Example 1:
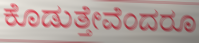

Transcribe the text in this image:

ಕೊಡುತ್ತೇವೆಂದರೂ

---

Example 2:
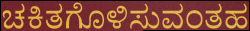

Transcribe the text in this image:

ಚಕಿತಗೊಳಿಸುವಂತಹ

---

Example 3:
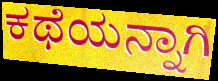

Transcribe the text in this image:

ಕಥೆಯನ್ನಾಗಿ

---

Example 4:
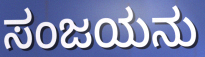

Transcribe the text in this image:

ಸಂಜಯನು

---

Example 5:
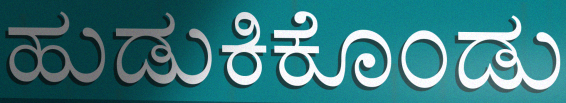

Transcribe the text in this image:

ಹುಡುಕಿಕೊಂಡು